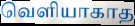
வெளியாகாத